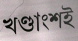
খণ্ডাংশই